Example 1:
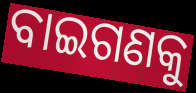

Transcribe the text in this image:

ବାଇଗଣକୁ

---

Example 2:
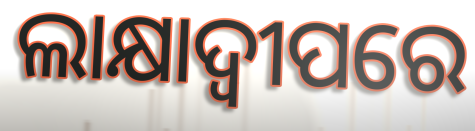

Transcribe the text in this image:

ଲାକ୍ଷାଦ୍ୱୀପରେ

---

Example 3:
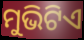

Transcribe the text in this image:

ମୁଭିଟିଏ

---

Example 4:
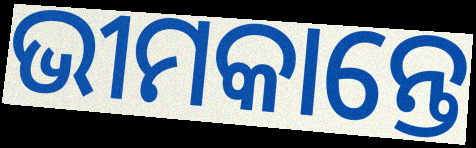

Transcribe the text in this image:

ଭୀମକାନ୍ତେ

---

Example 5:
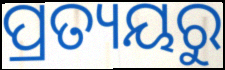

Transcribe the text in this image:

ପ୍ରତ୍ୟୟରୁ